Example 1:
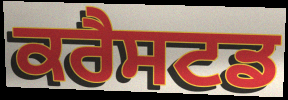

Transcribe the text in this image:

ਕਰੈਸਟਡ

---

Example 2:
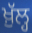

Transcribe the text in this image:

ਖ਼ੁੱਲ੍ਹ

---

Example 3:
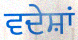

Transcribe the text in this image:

ਵਦੇਸ਼ਾਂ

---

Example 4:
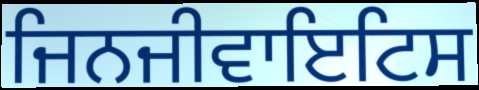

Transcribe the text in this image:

ਜਿਨਜੀਵਾਇਟਿਸ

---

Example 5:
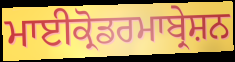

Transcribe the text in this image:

ਮਾਈਕ੍ਰੋਡਰਮਾਬ੍ਰੇਸ਼ਨ